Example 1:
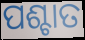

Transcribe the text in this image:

ପଶ୍ଚାତ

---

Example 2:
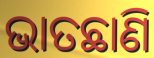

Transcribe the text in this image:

ଭାତଛାଣି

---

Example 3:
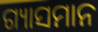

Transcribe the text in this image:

ଗ୍ୟାସମାନ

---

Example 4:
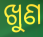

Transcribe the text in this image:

ଖୁଣ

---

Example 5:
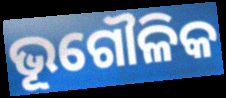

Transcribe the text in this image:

ଭୂଗୌଳିକ